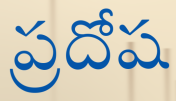
ప్రదోష